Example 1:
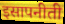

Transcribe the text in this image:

इसापनीती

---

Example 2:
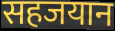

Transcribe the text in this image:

सहजयान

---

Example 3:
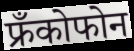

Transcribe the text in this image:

फ्रँकोफोन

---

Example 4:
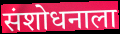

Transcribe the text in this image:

संशोधनाला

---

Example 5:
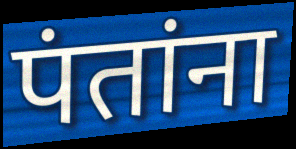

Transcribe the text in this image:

पंतांना